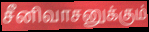
சீனிவாசனுக்கும்